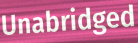
Unabridged